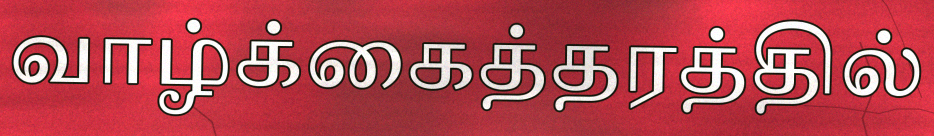
வாழ்க்கைத்தரத்தில்